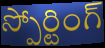
స్పోర్టింగ్